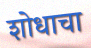
शोधाचा